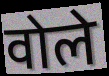
वोले